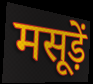
मसूड़ें